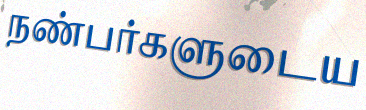
நண்பர்களுடைய